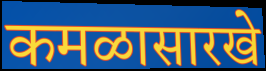
कमळासारखे